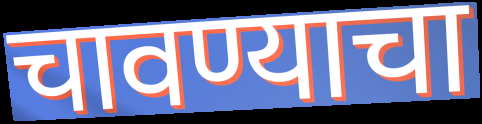
चावण्याचा